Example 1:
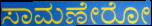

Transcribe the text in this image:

ಸಾಮಣೇರೋ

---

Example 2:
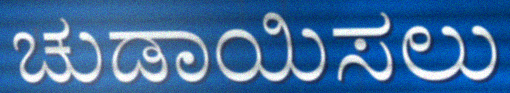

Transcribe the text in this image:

ಚುಡಾಯಿಸಲು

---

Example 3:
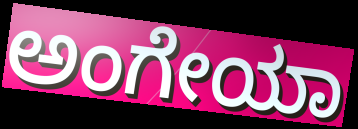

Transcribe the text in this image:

ಅಂಗೇಯಾ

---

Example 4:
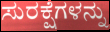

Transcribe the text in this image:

ಸುರಕ್ಷೆಗಳನ್ನು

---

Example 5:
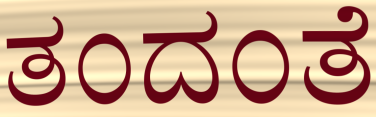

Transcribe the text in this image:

ತಂದಂತೆ